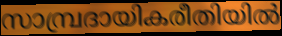
സാമ്പ്രദായികരീതിയിൽ